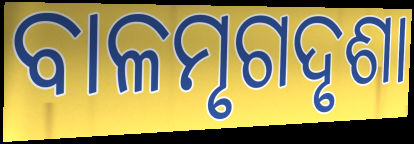
ବାଳମୃଗଦୃଶା